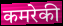
कमरेकी